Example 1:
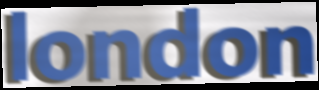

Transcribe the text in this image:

london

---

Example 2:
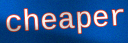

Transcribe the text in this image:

cheaper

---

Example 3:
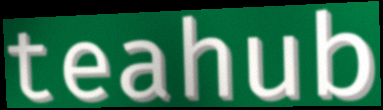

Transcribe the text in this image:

teahub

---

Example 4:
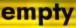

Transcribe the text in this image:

empty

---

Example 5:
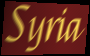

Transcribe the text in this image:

Syria